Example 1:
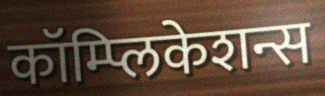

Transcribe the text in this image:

कॉम्प्लिकेशन्स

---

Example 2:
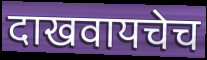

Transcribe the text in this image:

दाखवायचेच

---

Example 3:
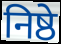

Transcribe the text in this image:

निष्ठे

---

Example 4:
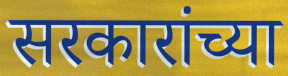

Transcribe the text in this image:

सरकारांच्या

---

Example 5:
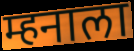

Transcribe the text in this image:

म्हनाला